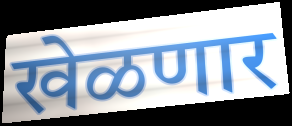
खेळणार